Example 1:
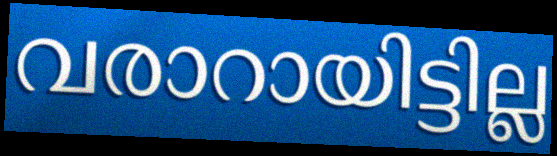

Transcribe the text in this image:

വരാറായിട്ടില്ല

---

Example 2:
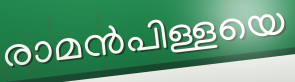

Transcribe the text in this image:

രാമൻപിള്ളയെ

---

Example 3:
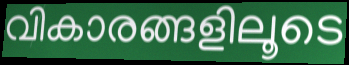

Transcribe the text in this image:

വികാരങ്ങളിലൂടെ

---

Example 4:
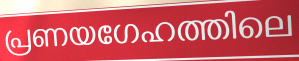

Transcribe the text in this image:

പ്രണയഗേഹത്തിലെ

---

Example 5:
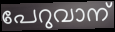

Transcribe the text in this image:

പേറുവാന്